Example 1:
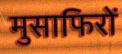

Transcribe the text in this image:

मुसाफिरों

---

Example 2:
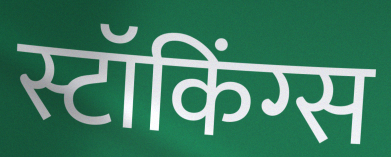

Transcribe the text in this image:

स्टॉकिंग्स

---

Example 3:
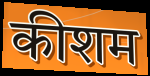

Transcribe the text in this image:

कीशम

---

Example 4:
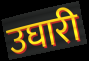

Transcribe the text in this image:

उघारी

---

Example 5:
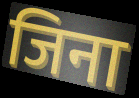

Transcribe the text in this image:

जिना